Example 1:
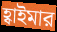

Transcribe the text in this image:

হ্বাইমার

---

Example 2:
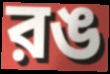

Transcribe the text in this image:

রঙ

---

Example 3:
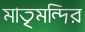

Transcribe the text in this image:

মাতৃমন্দির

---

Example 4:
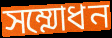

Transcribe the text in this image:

সম্মোধন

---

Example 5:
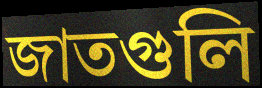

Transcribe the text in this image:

জাতগুলি